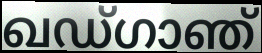
ഖഡ്ഗാഞ്